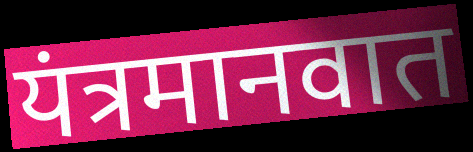
यंत्रमानवात